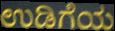
ಉಡಿಗೆಯ